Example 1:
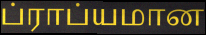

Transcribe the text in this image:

ப்ராப்யமான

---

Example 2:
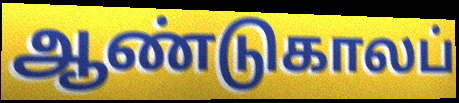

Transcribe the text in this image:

ஆண்டுகாலப்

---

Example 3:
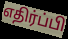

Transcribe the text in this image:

எதிர்ப்பி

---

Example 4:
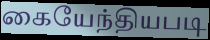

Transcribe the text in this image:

கையேந்தியபடி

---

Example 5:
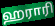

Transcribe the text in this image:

ஹராரி